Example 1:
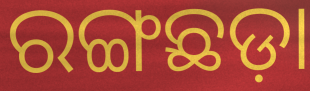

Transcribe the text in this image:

ରଙ୍ଗଛଡ଼ା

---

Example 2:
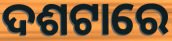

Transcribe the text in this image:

ଦଶଟାରେ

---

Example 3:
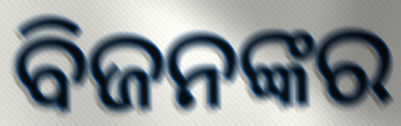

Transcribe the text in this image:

ବିଜନଙ୍କର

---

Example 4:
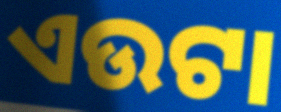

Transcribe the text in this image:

ଏଉଟା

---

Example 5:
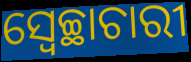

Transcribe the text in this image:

ସ୍ଵେଚ୍ଛାଚାରୀ